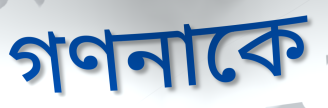
গণনাকে